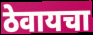
ठेवायचा